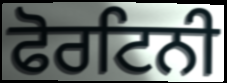
ਫੋਰਟਿਨੀ